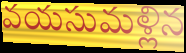
వయసుమళ్లిన